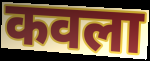
कवला